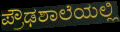
ಪ್ರೌಢಶಾಲೆಯಲ್ಲಿ